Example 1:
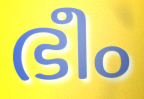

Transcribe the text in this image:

ഭീം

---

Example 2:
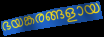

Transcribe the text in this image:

ഭയങ്കരങ്ങളായ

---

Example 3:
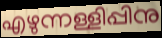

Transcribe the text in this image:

എഴുന്നള്ളിപ്പിനു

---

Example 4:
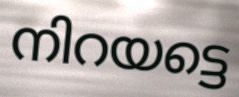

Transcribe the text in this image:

നിറയട്ടെ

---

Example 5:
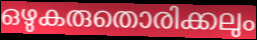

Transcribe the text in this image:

ഒഴുകരുതൊരിക്കലും